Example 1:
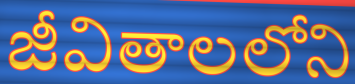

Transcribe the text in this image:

జీవితాలలోని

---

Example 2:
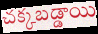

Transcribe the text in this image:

చక్కబడ్డాయి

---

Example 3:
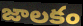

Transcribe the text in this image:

జాలకం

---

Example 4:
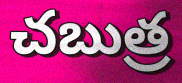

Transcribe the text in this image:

చబుత్ర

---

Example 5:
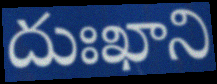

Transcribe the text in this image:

దుఃఖాని